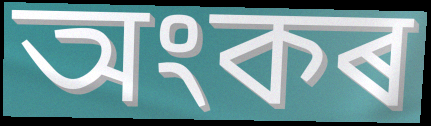
অংকৰ